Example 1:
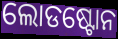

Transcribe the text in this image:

ଲୋଡଷ୍ଟୋନ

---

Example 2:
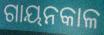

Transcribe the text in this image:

ଗାୟନକାଳ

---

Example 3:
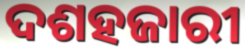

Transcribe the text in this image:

ଦଶହଜାରୀ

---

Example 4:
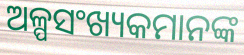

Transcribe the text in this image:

ଅଳ୍ପସଂଖ୍ୟକମାନଙ୍କ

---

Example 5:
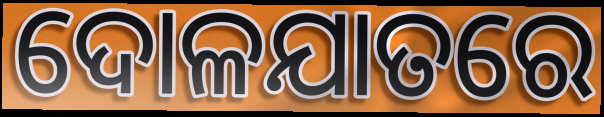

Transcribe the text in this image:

ଦୋଳଯାତରେ